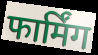
फार्मिंग